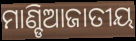
ମାଣ୍ଡିଆଜାତୀୟ